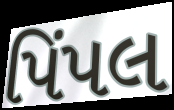
પિંપલ